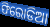
ଫିରୋଡିଆ